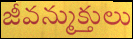
జీవన్ముక్తులు